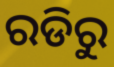
ରଡିରୁ